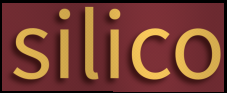
silico